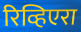
रिव्हिएरा